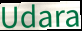
Udara